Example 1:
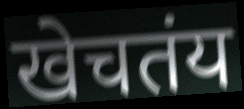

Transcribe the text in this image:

खेचतंय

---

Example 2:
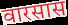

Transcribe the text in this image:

वारसास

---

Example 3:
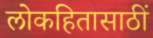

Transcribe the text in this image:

लोकहितासाठीं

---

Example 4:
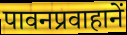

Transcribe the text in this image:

पावनप्रवाहानें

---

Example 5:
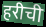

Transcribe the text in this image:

हरीची